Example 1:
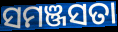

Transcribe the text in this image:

ସମଞ୍ଜସତା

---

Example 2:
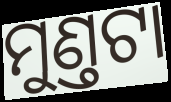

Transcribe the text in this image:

ମୁଣ୍ତଟା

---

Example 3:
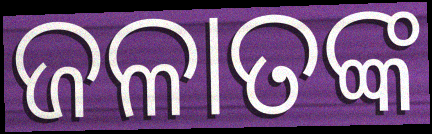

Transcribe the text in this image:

ଜଳାତଙ୍କ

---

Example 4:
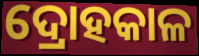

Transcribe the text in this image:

ଦ୍ରୋହକାଳ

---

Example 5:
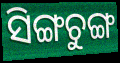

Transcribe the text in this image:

ସିଙ୍ଗଚୁଙ୍ଗ